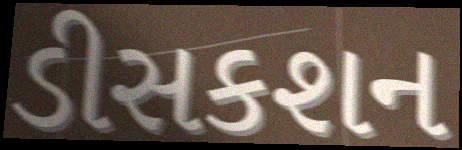
ડીસકશન